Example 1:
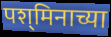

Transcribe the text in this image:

पश्मिनाच्या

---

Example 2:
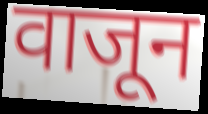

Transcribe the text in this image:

वाजून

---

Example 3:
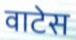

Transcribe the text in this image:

वाटेस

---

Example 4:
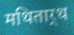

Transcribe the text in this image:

मथितार्थ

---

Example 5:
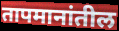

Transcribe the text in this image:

तापमानांतील